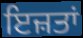
ਇਜ਼ਤਾਂ